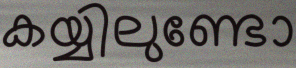
കയ്യിലുണ്ടോ